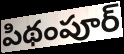
పిథంపూర్